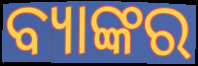
ବ୍ୟାଙ୍କର